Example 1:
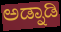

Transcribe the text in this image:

ಅಡ್ನಾಡಿ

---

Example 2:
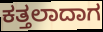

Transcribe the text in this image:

ಕತ್ತಲಾದಾಗ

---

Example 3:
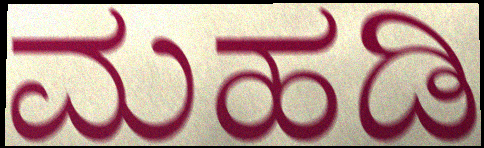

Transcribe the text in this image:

ಮಹಡಿ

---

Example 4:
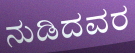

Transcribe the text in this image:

ನುಡಿದವರ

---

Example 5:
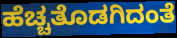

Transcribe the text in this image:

ಹೆಚ್ಚತೊಡಗಿದಂತೆ